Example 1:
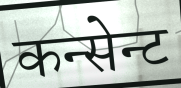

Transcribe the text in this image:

कन्सेन्ट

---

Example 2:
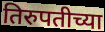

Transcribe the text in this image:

तिरुपतीच्या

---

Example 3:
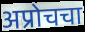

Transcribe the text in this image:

अप्रोचचा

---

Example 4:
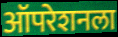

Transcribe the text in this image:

ऑपरेशनला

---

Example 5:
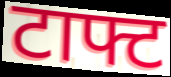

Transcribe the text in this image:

टाफ्ट